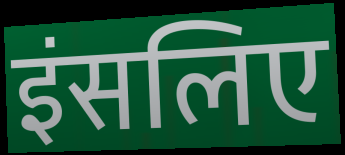
इंसलिए